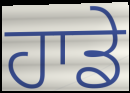
ਹਾਡੇ